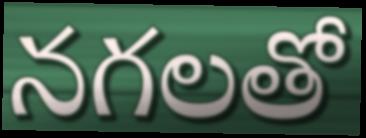
నగలతో